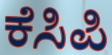
ಕೆಸಿಪಿ